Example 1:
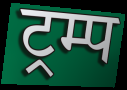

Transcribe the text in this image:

ट्रम्‍प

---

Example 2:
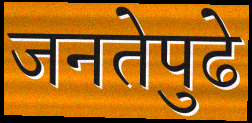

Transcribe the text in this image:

जनतेपुढे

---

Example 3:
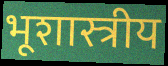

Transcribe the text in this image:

भूशास्त्रीय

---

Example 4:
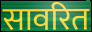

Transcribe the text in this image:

सावरित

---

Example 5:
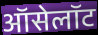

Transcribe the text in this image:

ऑसेलॉट